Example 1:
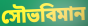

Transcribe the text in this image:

সৌভবিমান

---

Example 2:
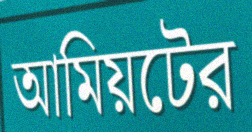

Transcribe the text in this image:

আমিয়টের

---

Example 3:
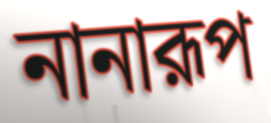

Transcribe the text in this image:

নানারূপ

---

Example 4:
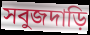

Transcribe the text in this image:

সবুজদাড়ি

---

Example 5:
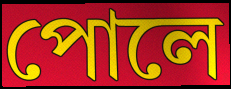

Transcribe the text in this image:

পোলে